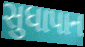
સુધાપાન